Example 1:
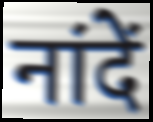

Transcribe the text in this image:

नांदें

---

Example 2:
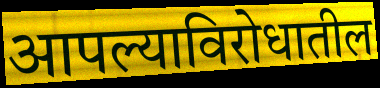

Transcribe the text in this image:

आपल्याविरोधातील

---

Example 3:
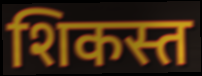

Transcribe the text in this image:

शिकस्त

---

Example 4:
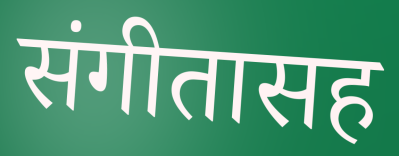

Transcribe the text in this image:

संगीतासह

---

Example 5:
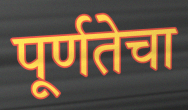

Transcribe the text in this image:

पूर्णतेचा